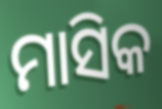
ମାସିକ